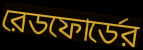
রেডফোর্ডের